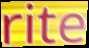
rite